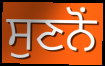
ਸੁਣਨੋਂ